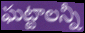
ఘట్టాలన్నీ